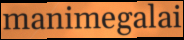
manimegalai